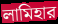
লামিহার